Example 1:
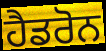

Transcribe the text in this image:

ਹੈਡਰੋਨ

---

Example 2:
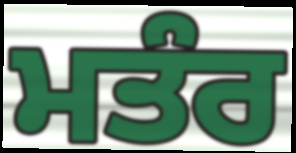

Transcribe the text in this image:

ਮਤੰਰ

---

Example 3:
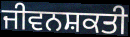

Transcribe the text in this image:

ਜੀਵਨਸ਼ਕਤੀ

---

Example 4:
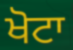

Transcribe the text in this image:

ਖੋਟਾ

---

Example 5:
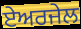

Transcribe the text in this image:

ਏਅਰਜੇਲ